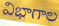
విభాగాల